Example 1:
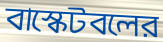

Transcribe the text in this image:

বাস্কেটবলের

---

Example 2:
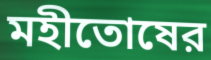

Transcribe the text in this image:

মহীতোষের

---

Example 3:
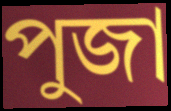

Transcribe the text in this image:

পুজা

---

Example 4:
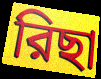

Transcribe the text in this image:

রিছা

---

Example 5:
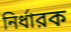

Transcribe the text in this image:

নির্ধারক